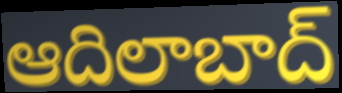
ఆదిలాబాద్